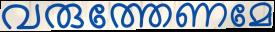
വരുത്തേണമേ